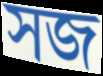
সজ